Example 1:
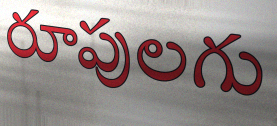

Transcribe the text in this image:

రూపులగు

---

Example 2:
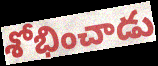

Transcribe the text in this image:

శోభించాడు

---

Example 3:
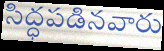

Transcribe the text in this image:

సిద్ధపడినవారు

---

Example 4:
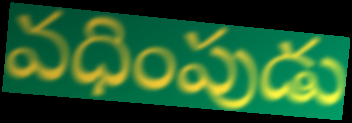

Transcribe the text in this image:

వధింపుడు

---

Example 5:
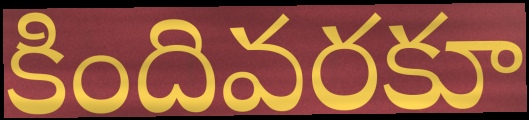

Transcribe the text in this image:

కిందివరకూ